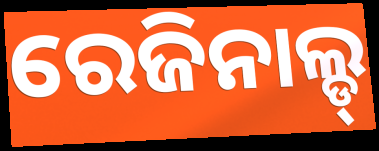
ରେଜିନାଲ୍ଡ୍